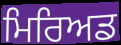
ਮਿਰਿਅਡ